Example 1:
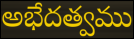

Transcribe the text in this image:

అభేదత్వము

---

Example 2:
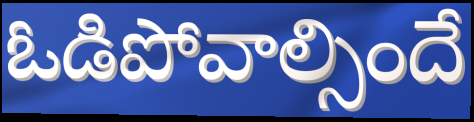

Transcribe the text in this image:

ఓడిపోవాల్సిందే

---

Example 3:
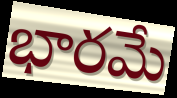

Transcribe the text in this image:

భారమే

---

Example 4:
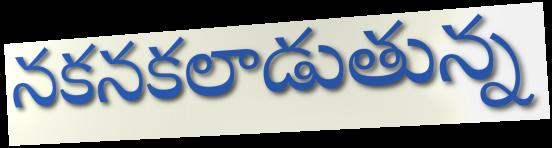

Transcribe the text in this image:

నకనకలాడుతున్న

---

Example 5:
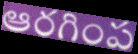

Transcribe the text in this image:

ఆరగింప